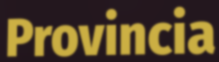
Provincia